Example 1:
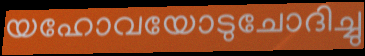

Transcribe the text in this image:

യഹോവയോടുചോദിച്ചു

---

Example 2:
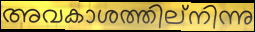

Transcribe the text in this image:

അവകാശത്തില്നിന്നു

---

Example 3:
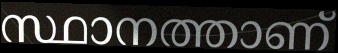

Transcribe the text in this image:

സ്ഥാനത്താണ്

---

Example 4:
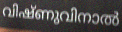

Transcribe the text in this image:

വിഷ്ണുവിനാൽ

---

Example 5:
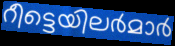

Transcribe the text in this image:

റീട്ടെയിലർമാർ